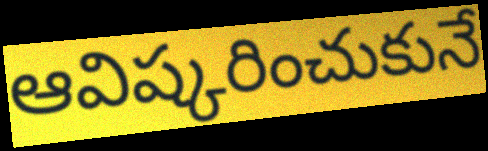
ఆవిష్కరించుకునే